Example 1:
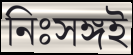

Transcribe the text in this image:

নিঃসঙ্গই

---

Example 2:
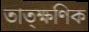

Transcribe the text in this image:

তাত্ক্ষণিক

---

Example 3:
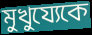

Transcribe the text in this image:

মুখুয্যেকে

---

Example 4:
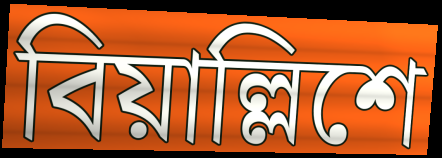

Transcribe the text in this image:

বিয়াল্লিশে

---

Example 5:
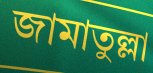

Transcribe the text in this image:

জামাতুল্লা